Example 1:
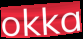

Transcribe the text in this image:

okka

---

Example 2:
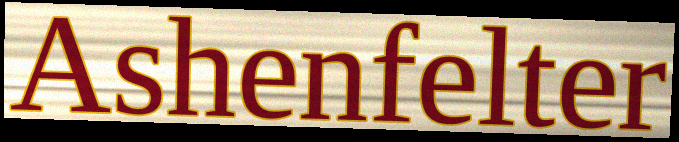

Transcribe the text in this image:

Ashenfelter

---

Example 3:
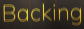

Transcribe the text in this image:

Backing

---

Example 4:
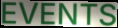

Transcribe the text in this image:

EVENTS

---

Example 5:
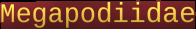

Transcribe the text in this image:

Megapodiidae